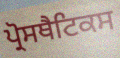
ਪ੍ਰੋਸਥੈਟਿਕਸ